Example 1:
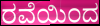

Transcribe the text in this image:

ರವೆಯಿಂದ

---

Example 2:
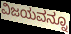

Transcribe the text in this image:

ವಿಜಯವನ್ನೂ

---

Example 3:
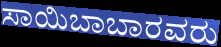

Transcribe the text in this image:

ಸಾಯಿಬಾಬಾರವರು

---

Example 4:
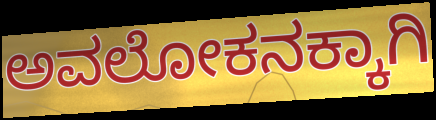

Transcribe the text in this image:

ಅವಲೋಕನಕ್ಕಾಗಿ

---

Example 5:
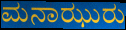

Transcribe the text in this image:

ಮನಾಝುರು